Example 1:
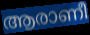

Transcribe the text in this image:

ആരാണീ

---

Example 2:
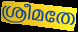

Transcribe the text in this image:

ശ്രീമതേ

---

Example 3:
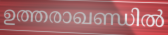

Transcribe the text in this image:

ഉത്തരാഖണ്ഡിൽ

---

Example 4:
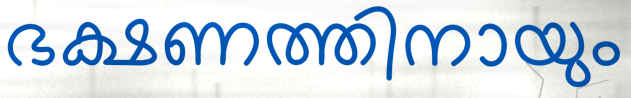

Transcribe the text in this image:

ഭക്ഷണത്തിനായും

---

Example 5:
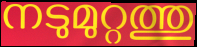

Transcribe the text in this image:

നടുമുറ്റത്തു